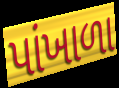
પાંખાળા